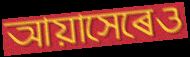
আয়াসেৰেও